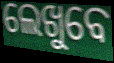
ଲେଖୁବେ